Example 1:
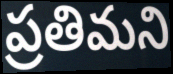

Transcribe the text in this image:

ప్రతిమని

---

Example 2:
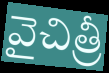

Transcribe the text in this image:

వైచిత్రీ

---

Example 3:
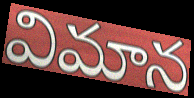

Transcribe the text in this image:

విమాన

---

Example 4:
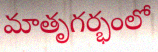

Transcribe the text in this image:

మాతృగర్భంలో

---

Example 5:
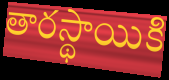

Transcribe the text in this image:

తారస్థాయికి